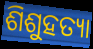
ଶିଶୁହତ୍ୟା